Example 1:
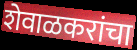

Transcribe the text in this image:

शेवाळकरांचा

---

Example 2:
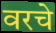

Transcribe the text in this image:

वरचे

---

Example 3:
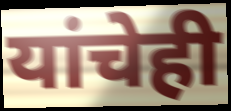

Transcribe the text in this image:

यांचेही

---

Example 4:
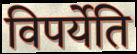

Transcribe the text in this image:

विपर्येति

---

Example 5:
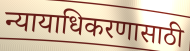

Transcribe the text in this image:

न्यायाधिकरणासाठी